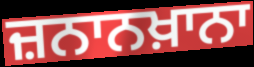
ਜ਼ਨਾਨਖ਼ਾਨਾ